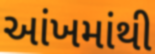
આંખમાંથી